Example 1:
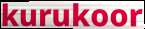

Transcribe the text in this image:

kurukoor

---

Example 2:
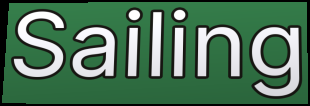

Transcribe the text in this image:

Sailing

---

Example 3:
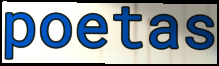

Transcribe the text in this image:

poetas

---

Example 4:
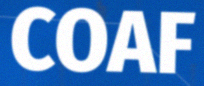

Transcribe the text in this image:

COAF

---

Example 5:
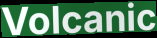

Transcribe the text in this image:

Volcanic